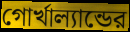
গোর্খাল্যান্ডের